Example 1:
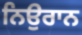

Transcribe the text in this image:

ਨਿਉਰਾਨ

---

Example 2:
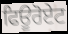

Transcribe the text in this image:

ਫਿਊਰੋਏਟ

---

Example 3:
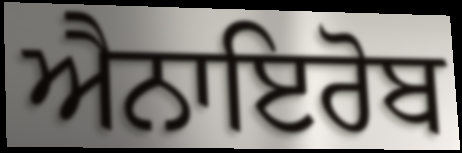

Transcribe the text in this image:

ਐਨਾਇਰੋਬ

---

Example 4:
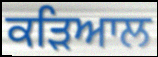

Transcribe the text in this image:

ਕੜਿਆਲ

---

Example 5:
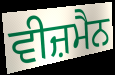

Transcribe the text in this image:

ਵੀਜ਼ਮੈਨ